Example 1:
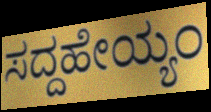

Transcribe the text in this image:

ಸದ್ದಹೇಯ್ಯಂ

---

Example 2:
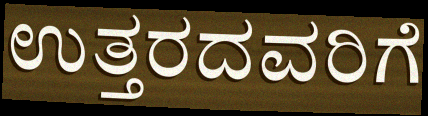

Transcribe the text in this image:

ಉತ್ತರದವರಿಗೆ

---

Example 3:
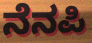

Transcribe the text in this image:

ನೆನಪಿ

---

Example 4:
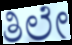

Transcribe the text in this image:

ತಿಲೇ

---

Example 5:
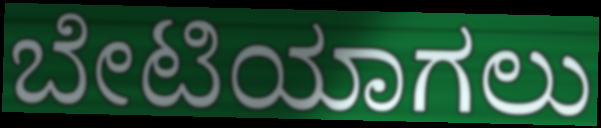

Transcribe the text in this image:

ಬೇಟಿಯಾಗಲು